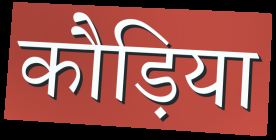
कौड़िया